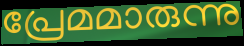
പ്രേമമാരുന്നു